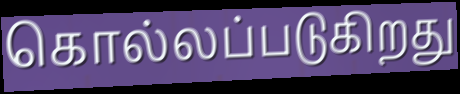
கொல்லப்படுகிறது